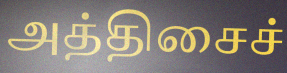
அத்திசைச்